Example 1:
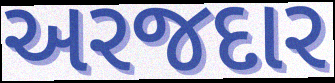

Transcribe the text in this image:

અરજદાર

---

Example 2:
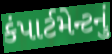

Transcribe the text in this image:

કંપાર્ટમેન્ટનું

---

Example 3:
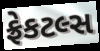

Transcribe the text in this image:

ફ્રેકટલ્સ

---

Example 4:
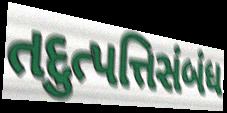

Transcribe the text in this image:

તદુત્પત્તિસંબંધ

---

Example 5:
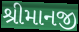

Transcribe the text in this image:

શ્રીમાનજી